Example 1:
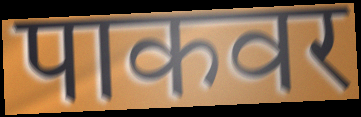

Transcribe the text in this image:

पाकवर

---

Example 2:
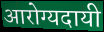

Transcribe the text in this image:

आरोग्यदायी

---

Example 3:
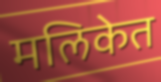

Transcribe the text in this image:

मलिकेत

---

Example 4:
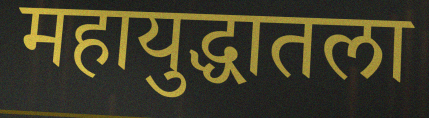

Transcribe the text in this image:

महायुद्धातला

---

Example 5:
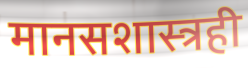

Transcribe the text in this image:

मानसशास्त्रही